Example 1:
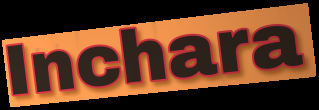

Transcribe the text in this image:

Inchara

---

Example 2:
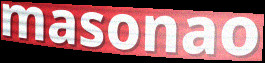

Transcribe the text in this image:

masonao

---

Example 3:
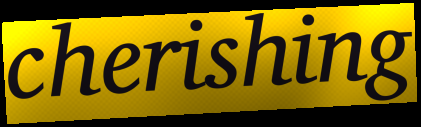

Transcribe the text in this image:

cherishing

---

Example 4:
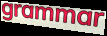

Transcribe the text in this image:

grammar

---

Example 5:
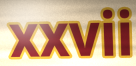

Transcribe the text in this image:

xxvii